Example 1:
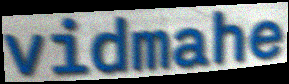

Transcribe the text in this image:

vidmahe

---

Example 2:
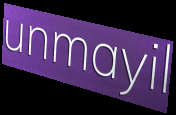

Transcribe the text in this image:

unmayil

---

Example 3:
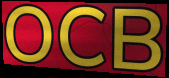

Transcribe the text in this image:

OCB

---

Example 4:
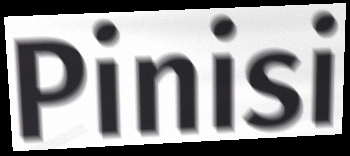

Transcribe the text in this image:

Pinisi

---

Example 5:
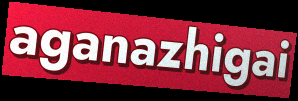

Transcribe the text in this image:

aganazhigai